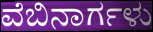
ವೆಬಿನಾರ್ಗಳು